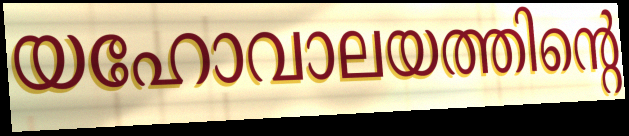
യഹോവാലയത്തിന്റെ